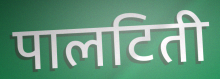
पालटिती